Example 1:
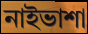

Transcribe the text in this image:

নাইভাশা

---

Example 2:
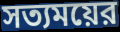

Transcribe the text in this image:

সত্যময়ের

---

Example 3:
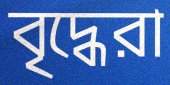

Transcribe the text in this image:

বৃদ্ধেরা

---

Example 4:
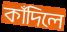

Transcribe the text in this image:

কাঁদিলে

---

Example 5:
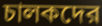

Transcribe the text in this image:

চালকদের